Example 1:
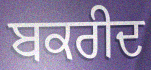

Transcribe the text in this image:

ਬਕਰੀਦ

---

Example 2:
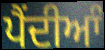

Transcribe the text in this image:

ਪੈੰਦੀਆੰ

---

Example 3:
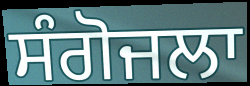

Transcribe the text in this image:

ਸੰਗੋਜਲਾ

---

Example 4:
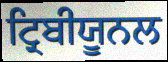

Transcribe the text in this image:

ਟ੍ਰਿਬੀਯੂਨਲ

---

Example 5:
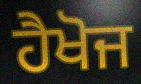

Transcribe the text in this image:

ਹੈਖੋਜ